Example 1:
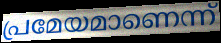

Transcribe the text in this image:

പ്രമേയമാണെന്ന്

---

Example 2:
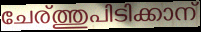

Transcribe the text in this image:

ചേര്ത്തുപിടിക്കാന്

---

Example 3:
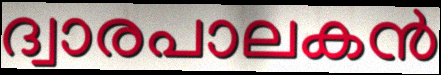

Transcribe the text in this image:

ദ്വാരപാലകൻ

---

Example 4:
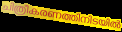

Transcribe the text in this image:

ചിത്രീകരണത്തിനിടയിൽ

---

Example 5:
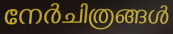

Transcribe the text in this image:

നേർചിത്രങ്ങൾ